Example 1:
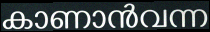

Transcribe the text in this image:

കാണാൻവന്ന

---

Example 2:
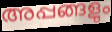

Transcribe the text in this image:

അപ്പങ്ങളും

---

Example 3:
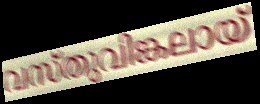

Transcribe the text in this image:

വസ്തുവിങ്കലായ്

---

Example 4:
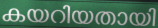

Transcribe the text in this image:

കയറിയതായി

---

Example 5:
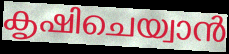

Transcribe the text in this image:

കൃഷിചെയ്വാൻ